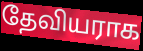
தேவியராக